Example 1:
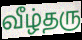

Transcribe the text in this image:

வீழ்தரு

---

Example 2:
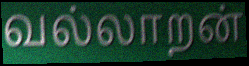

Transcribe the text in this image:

வல்லாறன்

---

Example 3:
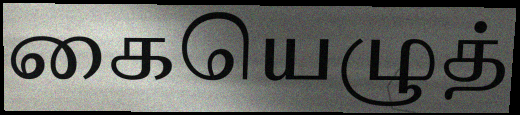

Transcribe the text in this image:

கையெழுத்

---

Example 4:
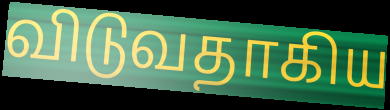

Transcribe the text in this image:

விடுவதாகிய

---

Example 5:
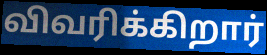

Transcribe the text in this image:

விவரிக்கிறார்